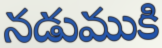
నడుముకి